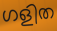
ഗളിത